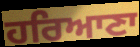
ਹਰਿਆਣਾ